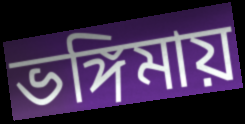
ভঙ্গিমায়